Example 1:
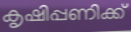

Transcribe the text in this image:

കൃഷിപ്പണിക്ക്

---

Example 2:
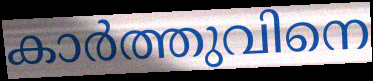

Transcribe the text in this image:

കാർത്തുവിനെ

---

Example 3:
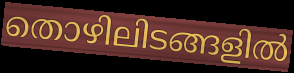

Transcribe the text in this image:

തൊഴിലിടങ്ങളിൽ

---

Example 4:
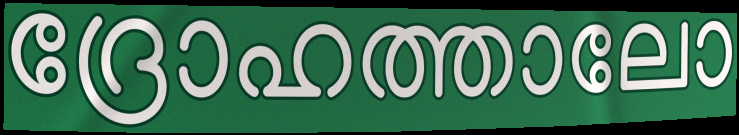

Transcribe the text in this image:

ദ്രോഹത്താലോ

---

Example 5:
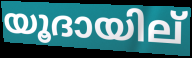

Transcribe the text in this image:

യൂദായില്